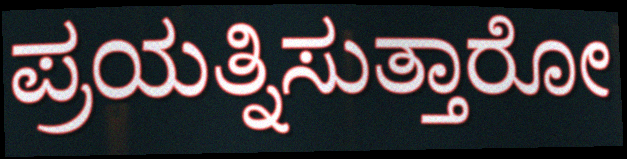
ಪ್ರಯತ್ನಿಸುತ್ತಾರೋ